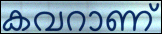
കവറാണ്